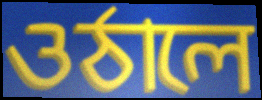
ওঠালে